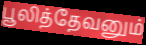
பூலித்தேவனும்